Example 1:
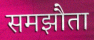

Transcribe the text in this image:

समझौता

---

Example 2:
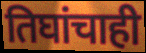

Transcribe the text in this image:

तिघांचाही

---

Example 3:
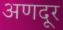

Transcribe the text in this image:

अणदूर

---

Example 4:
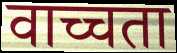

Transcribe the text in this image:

वाच्चता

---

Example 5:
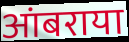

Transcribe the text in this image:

आंबराया